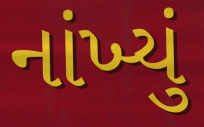
નાંખ્યું